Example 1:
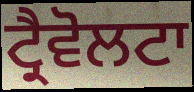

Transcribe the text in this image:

ਟ੍ਰੈਵੋਲਟਾ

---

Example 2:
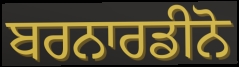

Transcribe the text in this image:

ਬਰਨਾਰਡੀਨੋ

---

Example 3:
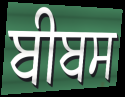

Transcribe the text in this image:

ਬੀਬਸ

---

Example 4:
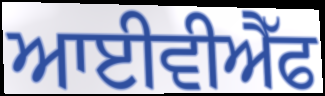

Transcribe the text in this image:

ਆਈਵੀਐੱਫ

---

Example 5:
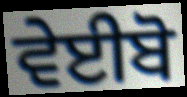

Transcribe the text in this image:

ਵੇਈਬੋ